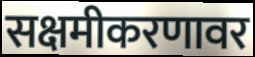
सक्षमीकरणावर